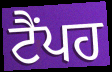
ਟੈਂਪਹ